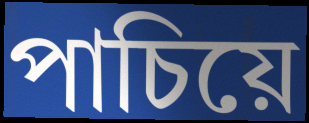
পাচিয়ে